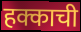
हक्काची